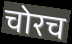
चोरच